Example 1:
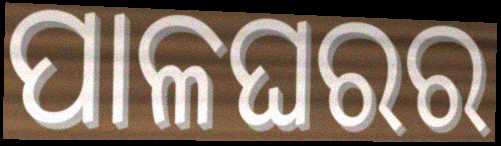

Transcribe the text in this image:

ପାଳଘରର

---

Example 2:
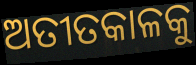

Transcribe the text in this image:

ଅତୀତକାଳକୁ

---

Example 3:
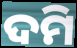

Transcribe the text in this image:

ଦମି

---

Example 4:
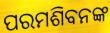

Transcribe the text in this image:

ପରମଶିବନଙ୍କ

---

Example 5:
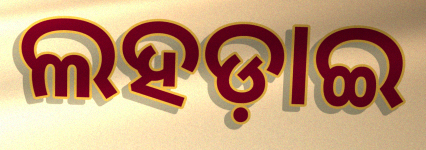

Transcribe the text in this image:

ଲହଡ଼ାଇ